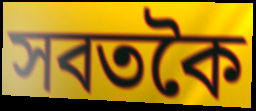
সবতকৈ